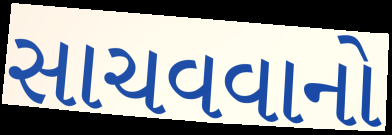
સાચવવાનો